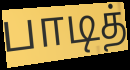
பாடித்